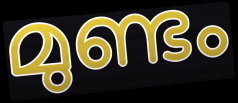
മുണ്ടം